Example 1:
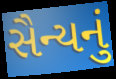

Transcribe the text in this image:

સૈન્યનું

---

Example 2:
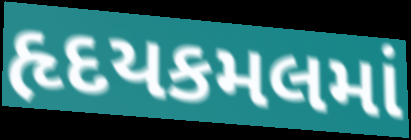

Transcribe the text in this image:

હૃદયકમલમાં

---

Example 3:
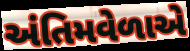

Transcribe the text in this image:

અંતિમવેળાએ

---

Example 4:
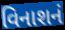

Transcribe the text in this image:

વિનાશનં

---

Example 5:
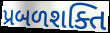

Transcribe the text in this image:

પ્રબળશક્તિ